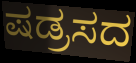
ಷಡ್ರಸದ